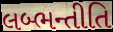
લબ્ભન્તીતિ